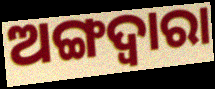
ଅଙ୍ଗଦ୍ଵାରା